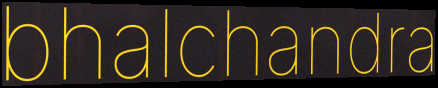
bhalchandra